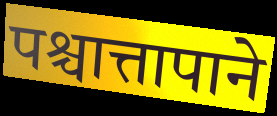
पश्चात्तापाने